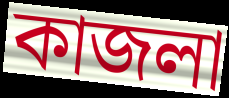
কাজলা